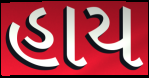
હાય